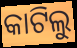
କାଟିଲୁ